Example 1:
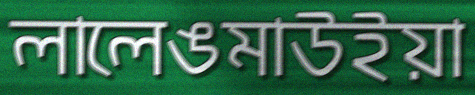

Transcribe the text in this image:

লালেঙমাউইয়া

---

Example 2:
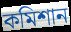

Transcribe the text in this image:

কমিশান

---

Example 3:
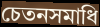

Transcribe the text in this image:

চেতনসমাধি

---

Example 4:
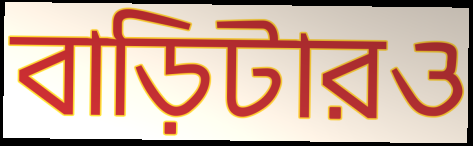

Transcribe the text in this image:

বাড়িটারও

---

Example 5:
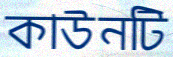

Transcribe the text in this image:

কাউনটি